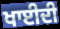
ਖਾਈਦੀ